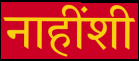
नाहींशी